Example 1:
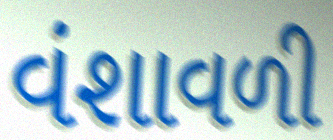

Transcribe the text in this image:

વંશાવળી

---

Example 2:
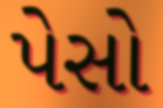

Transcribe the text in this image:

પેસો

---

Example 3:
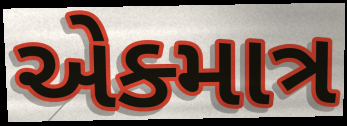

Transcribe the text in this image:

એક્માત્ર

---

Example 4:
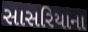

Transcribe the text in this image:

સાસરિયાના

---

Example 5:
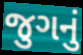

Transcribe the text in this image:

જુગનું